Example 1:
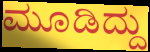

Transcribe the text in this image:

ಮೂಡಿದ್ದು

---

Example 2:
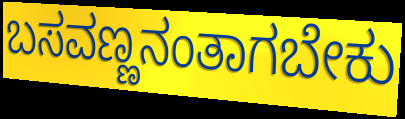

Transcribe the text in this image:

ಬಸವಣ್ಣನಂತಾಗಬೇಕು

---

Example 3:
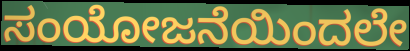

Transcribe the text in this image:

ಸಂಯೋಜನೆಯಿಂದಲೇ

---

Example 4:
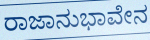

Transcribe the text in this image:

ರಾಜಾನುಭಾವೇನ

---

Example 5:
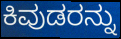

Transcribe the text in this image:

ಕಿವುಡರನ್ನು